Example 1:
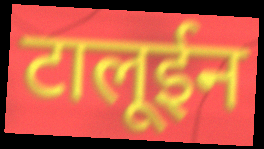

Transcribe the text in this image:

टालूईन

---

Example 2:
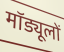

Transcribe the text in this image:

मॉड्यूलों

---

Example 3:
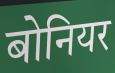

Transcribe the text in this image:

बोनियर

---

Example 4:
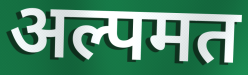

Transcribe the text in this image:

अल्पमत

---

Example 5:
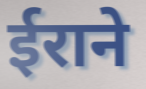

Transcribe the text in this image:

ईराने